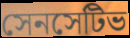
সেনসেটিভ